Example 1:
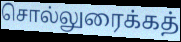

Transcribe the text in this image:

சொல்லுரைக்கத்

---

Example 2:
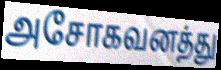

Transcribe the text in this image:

அசோகவனத்து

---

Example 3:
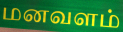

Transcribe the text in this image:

மனவளம்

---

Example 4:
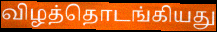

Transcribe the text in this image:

விழத்தொடங்கியது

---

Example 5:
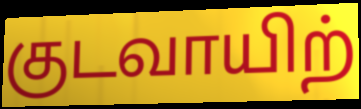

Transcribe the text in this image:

குடவாயிற்